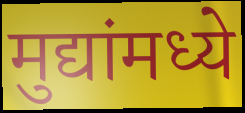
मुद्यांमध्ये